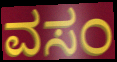
ವಸಂ